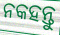
ନକହନ୍ତୁ